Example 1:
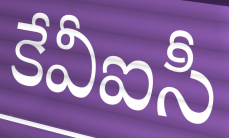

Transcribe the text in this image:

కేవీఐసీ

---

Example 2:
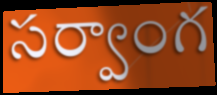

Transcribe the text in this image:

సర్వాంగ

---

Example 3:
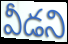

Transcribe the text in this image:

వీడని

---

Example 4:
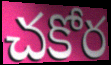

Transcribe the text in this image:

చకోర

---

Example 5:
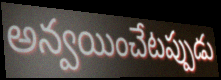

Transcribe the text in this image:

అన్వయించేటప్పుడు